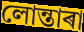
লোন্তাৰা